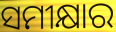
ସମୀକ୍ଷାର